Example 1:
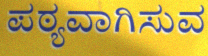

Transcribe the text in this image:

ಪಠ್ಯವಾಗಿಸುವ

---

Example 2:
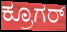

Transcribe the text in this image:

ಕ್ರೂಗರ್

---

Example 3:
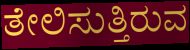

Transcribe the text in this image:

ತೇಲಿಸುತ್ತಿರುವ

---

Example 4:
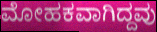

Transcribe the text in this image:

ಮೋಹಕವಾಗಿದ್ದವು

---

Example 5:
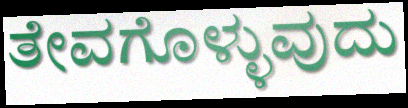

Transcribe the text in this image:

ತೇವಗೊಳ್ಳುವುದು